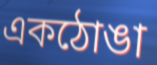
একঠোঙা